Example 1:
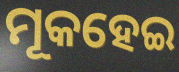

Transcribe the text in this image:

ମୂକହେଇ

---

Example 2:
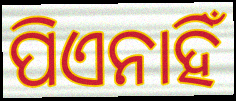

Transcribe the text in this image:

ପିଏନାହିଁ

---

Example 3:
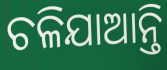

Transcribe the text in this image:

ଚଳିଯାଆନ୍ତି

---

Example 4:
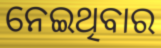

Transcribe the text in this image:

ନେଇଥିବାର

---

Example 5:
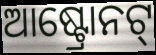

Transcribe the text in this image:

ଆଷ୍ଟ୍ରୋନଟ୍